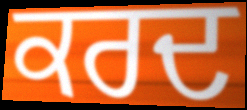
ਕਰਦ